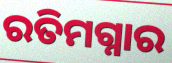
ରତିମଗ୍ନାର